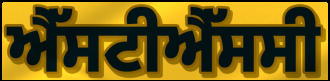
ਐੱਸਟੀਐੱਸਸੀ